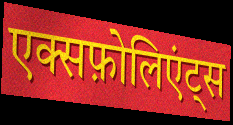
एक्सफ़ोलिएंट्स